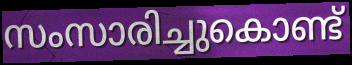
സംസാരിച്ചുകൊണ്ട്